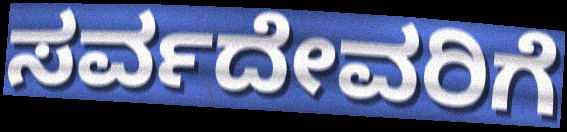
ಸರ್ವದೇವರಿಗೆ